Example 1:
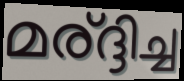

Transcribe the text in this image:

മര്ദ്ദിച്ച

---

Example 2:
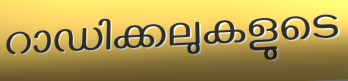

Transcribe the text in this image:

റാഡിക്കലുകളുടെ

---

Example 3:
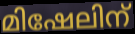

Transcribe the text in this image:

മിഷേലിന്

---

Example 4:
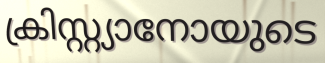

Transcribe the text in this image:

ക്രിസ്റ്റ്യാനോയുടെ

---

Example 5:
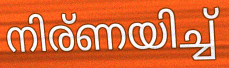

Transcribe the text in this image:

നിര്ണയിച്ച്